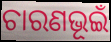
ଚାରଣଭୂଇଁ